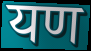
यण